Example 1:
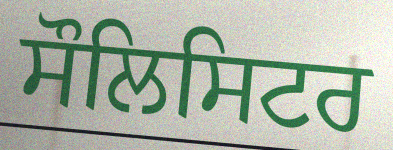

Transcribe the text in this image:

ਸੌਲਿਸਿਟਰ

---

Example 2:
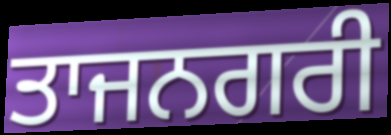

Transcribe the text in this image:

ਤਾਜਨਗਰੀ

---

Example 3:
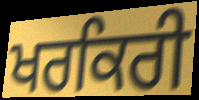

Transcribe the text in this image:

ਖਰਕਿਰੀ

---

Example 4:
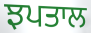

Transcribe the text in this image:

ਝਪਤਾਲ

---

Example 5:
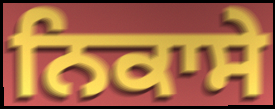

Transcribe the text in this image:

ਨਿਕਾਸੇ